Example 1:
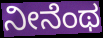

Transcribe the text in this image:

ನೀನೆಂಥ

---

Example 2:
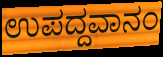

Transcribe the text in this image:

ಉಪದ್ದವಾನಂ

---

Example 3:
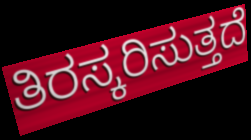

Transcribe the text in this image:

ತಿರಸ್ಕರಿಸುತ್ತದೆ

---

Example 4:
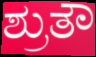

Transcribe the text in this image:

ಶ್ರುತೌ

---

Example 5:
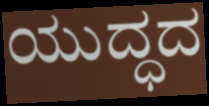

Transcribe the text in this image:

ಯುದ್ಧದ